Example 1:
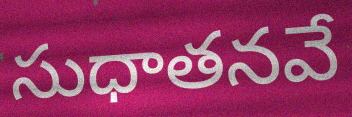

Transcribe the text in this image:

సుధాతనవే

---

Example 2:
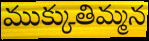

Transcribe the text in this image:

ముక్కుతిమ్మన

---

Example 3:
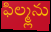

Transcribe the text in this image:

ఫిల్మ్లను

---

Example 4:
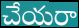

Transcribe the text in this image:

చేయరా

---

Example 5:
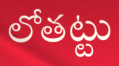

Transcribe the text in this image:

లోతట్టు